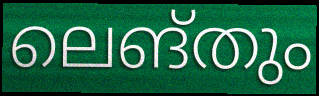
ലെങ്തും